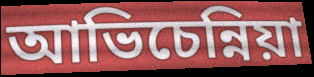
আভিচেন্নিয়া